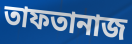
তাফতানাজ